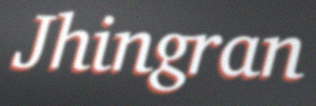
Jhingran